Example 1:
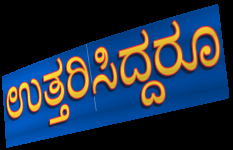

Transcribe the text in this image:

ಉತ್ತರಿಸಿದ್ದರೂ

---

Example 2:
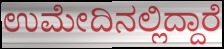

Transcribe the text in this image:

ಉಮೇದಿನಲ್ಲಿದ್ದಾರೆ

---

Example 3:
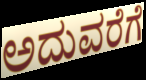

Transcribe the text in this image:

ಅದುವರೆಗೆ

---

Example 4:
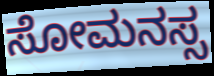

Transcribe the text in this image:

ಸೋಮನಸ್ಸ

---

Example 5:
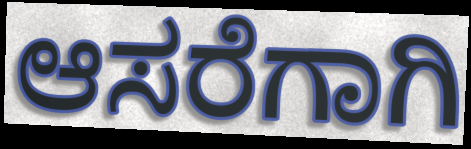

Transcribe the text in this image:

ಆಸರೆಗಾಗಿ